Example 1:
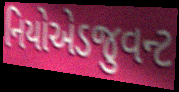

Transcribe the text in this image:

નિયોએડજુવન્ટ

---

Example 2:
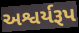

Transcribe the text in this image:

અશ્વર્યરૂપ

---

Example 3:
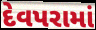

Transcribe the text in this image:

દેવપરામાં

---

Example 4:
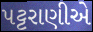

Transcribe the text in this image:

પટ્ટરાણીએ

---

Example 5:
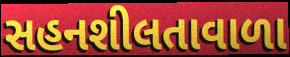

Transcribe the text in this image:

સહનશીલતાવાળા